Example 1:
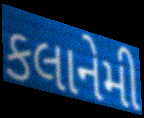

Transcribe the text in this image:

કલાનેમી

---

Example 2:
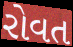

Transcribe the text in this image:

રોવત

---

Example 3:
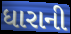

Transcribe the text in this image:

ધારાની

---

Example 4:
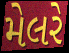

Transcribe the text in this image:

મેલરે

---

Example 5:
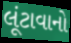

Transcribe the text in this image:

લૂંટાવાનો